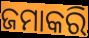
ଜମାକରି